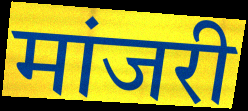
मांजरी